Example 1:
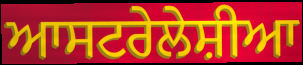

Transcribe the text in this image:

ਆਸਟਰੇਲੇਸ਼ੀਆ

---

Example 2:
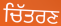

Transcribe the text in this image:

ਚਿੱਤਰਣ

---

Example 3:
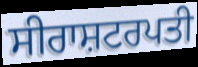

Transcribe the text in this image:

ਸੀਰਾਸ਼ਟਰਪਤੀ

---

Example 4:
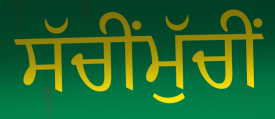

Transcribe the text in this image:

ਸੱਚੀਂਮੁੱਚੀਂ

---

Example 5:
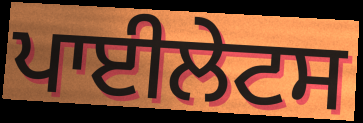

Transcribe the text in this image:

ਪਾਈਲੇਟਸ